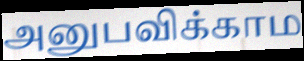
அனுபவிக்காம